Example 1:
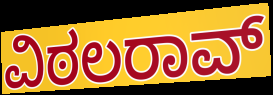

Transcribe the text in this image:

ವಿಠಲರಾವ್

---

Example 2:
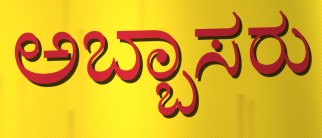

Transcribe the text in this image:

ಅಬ್ಬಾಸರು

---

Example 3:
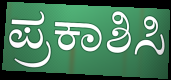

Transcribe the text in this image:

ಪ್ರಕಾಶಿಸಿ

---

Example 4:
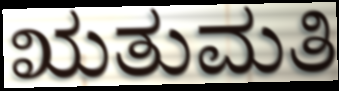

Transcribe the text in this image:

ಋತುಮತಿ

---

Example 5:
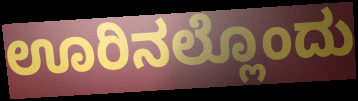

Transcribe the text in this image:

ಊರಿನಲ್ಲೊಂದು